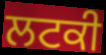
ਲਟਕੀ